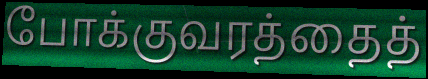
போக்குவரத்தைத்